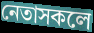
নেতাসকলে